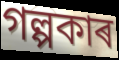
গল্পকাৰ